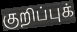
குறிப்புக்